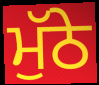
ਮੁੱਠੇ